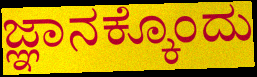
ಜ್ಞಾನಕ್ಕೊಂದು